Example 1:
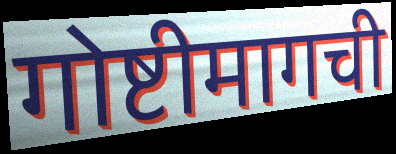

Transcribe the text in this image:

गोष्टीमागची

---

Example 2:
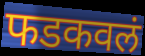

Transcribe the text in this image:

फडकवलं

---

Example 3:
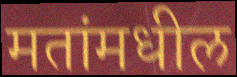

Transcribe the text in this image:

मतांमधील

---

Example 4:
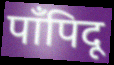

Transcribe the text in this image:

पाँपिदू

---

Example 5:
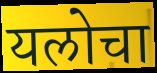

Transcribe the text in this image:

यलोचा